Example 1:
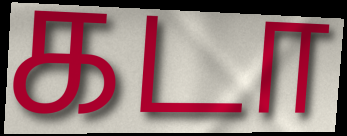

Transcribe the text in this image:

கடா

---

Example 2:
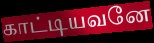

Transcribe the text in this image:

காட்டியவனே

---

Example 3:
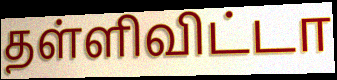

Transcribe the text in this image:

தள்ளிவிட்டா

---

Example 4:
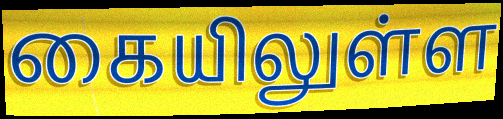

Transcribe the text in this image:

கையிலுள்ள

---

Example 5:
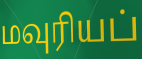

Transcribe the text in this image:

மவுரியப்